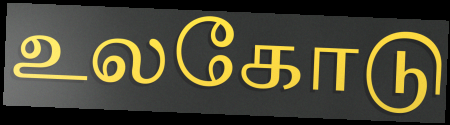
உலகோடு